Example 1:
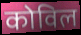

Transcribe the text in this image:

कोविल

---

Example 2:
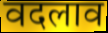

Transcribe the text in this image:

वदलाव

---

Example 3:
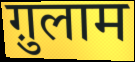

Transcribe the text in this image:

ग़ुलाम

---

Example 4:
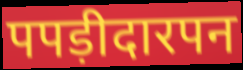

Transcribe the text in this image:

पपड़ीदारपन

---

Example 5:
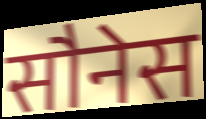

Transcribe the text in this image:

सौनेस